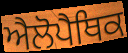
ਐਲੋਪੈਥਿਕ